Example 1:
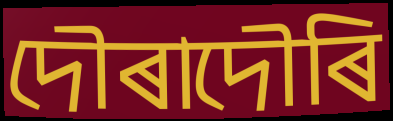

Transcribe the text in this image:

দৌৰাদৌৰি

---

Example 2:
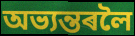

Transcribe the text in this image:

অভ্যন্তৰলৈ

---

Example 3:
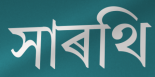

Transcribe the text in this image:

সাৰথি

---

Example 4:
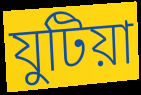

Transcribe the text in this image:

যুটিয়া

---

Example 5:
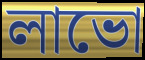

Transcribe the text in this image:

লাভো